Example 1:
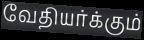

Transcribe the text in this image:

வேதியர்க்கும்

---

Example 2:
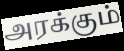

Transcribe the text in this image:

அரக்கும்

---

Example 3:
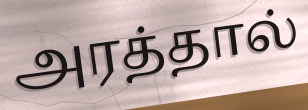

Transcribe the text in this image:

அரத்தால்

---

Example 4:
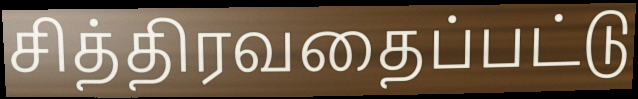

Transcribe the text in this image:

சித்திரவதைப்பட்டு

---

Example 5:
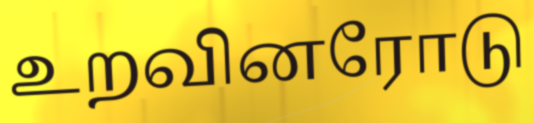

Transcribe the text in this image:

உறவினரோடு